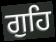
ਗੁਹਿ